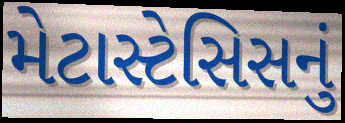
મેટાસ્ટેસિસનું